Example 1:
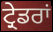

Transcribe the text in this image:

ਟ੍ਰੇਡਰਾਂ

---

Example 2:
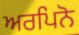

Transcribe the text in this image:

ਅਰਪਿਨੋ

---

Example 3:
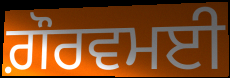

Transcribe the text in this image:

ਗ਼ੌਰਵਮਈ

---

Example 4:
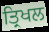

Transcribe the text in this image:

ਤ੍ਰਿਖਲ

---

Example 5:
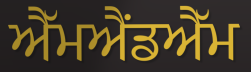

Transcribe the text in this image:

ਐੱਮਐਂਡਐੱਮ